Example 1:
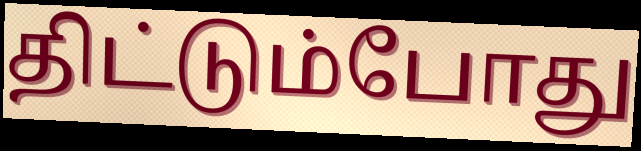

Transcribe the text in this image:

திட்டும்போது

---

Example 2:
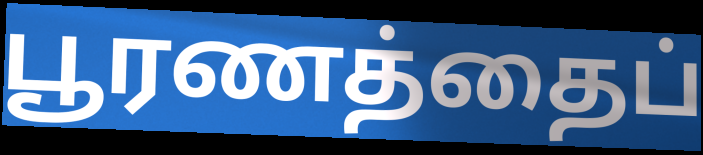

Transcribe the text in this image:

பூரணத்தைப்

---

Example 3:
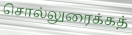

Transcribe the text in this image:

சொல்லுரைக்கத்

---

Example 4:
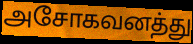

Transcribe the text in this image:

அசோகவனத்து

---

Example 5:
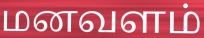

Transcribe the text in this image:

மனவளம்